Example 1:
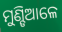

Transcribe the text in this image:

ମୁଣ୍ଡିଆଳେ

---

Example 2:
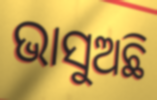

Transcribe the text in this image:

ଭାସୁଅଛି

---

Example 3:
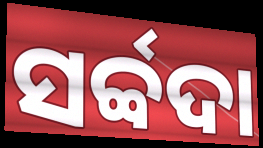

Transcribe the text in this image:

ସର୍ବ୍ବଦା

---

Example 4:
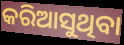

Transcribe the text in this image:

କରିଆସୁଥିବା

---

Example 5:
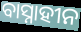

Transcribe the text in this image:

ବାସ୍ନାହୀନ